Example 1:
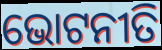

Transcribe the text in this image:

ଭୋଟନୀତି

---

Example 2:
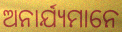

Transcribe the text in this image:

ଅନାର୍ଯ୍ୟମାନେ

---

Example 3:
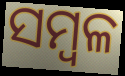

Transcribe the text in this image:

ସମ୍ବଳ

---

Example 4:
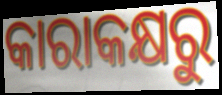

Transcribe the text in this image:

କାରାକକ୍ଷରୁ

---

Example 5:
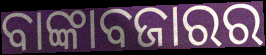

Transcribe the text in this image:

ବାଙ୍କାବଜାରର